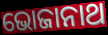
ଭୋଜାନାଥ